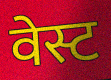
वेस्ट